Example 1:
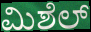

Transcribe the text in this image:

ಮಿಶೆಲ್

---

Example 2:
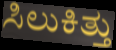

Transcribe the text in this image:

ಸಿಲುಕಿತ್ತು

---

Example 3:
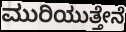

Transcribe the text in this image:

ಮುರಿಯುತ್ತೇನೆ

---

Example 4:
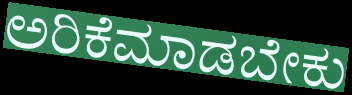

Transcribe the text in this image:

ಅರಿಕೆಮಾಡಬೇಕು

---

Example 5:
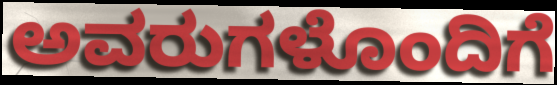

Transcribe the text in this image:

ಅವರುಗಳೊಂದಿಗೆ